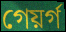
গেয়ৰ্গ